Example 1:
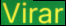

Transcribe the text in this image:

Virar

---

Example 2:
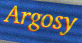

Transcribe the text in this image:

Argosy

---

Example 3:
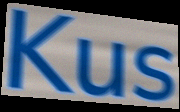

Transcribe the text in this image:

Kus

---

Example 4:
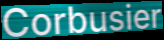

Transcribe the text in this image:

Corbusier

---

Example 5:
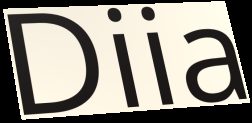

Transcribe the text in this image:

Diia